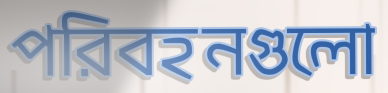
পরিবহনগুলো